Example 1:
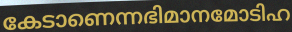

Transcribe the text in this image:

കേടാണെന്നഭിമാനമോടിഹ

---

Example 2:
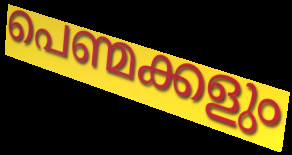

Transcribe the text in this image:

പെണ്മക്കളും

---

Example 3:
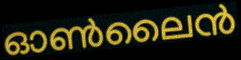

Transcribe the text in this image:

ഓൺലൈൻ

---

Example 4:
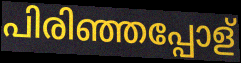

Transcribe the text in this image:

പിരിഞ്ഞപ്പോള്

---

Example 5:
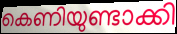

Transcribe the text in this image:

കെണിയുണ്ടാക്കി